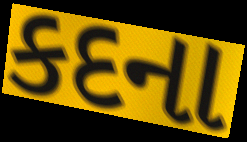
કદના